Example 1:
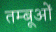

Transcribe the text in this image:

तम्बूओं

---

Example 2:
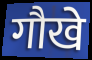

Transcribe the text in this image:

गौखे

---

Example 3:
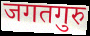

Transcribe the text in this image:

जगतगुरु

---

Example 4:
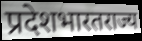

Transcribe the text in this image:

प्रदेशभारतराज्य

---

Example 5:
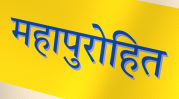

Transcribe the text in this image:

महापुरोहित